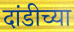
दांडीच्या